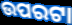
ଉପରଟା